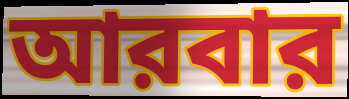
আরবার